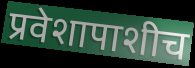
प्रवेशापाशीच